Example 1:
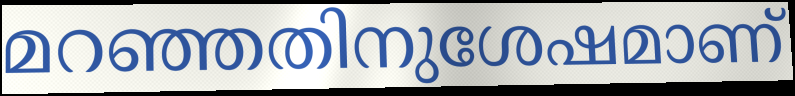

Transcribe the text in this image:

മറഞ്ഞതിനുശേഷമാണ്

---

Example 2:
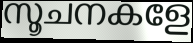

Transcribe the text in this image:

സൂചനകളേ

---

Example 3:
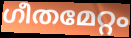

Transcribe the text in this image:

ഗീതമേറ്റം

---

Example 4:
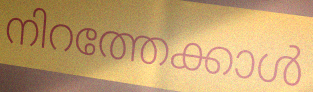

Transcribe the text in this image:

നിറത്തേക്കാൾ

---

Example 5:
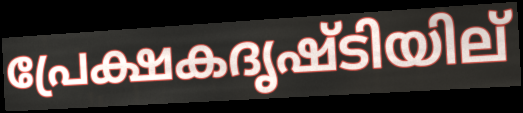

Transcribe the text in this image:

പ്രേക്ഷകദൃഷ്ടിയില്